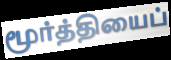
மூர்த்தியைப்